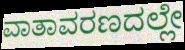
ವಾತಾವರಣದಲ್ಲೇ